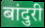
बांदुरी